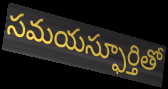
సమయస్ఫూర్తితో